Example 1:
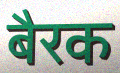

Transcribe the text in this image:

बैरक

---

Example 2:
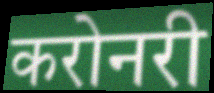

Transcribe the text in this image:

करोनरी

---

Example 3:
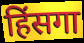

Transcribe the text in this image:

हिंसगा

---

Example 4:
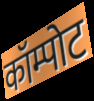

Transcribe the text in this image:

कॉम्पोट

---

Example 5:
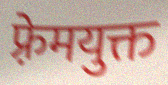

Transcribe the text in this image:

फ़्रेमयुक्त